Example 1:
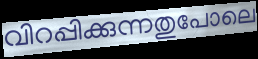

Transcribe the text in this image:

വിറപ്പിക്കുന്നതുപോലെ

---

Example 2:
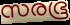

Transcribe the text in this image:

സരഭൂ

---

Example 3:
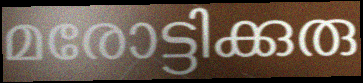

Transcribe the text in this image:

മരോട്ടിക്കുരു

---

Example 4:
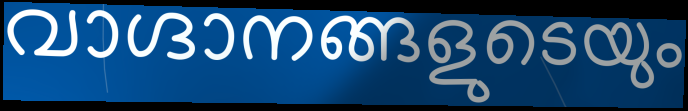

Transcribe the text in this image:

വാഗ്ദാനങ്ങളുടെയും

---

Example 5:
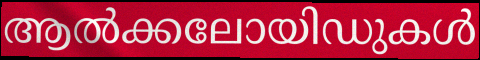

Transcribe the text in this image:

ആൽക്കലോയിഡുകൾ